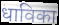
धाविका